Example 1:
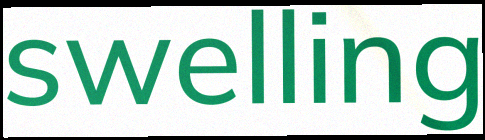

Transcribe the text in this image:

swelling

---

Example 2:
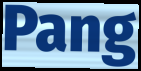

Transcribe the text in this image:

Pang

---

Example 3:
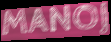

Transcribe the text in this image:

MANOJ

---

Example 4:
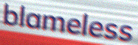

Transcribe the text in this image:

blameless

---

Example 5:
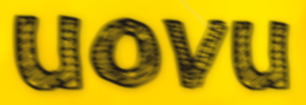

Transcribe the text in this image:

uovu